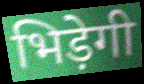
भिड़ेगी